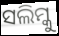
ସଲିମ୍କୁ